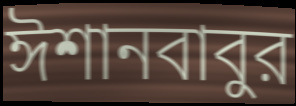
ঈশানবাবুর